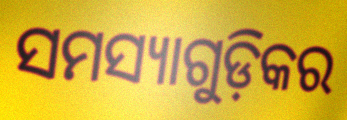
ସମସ୍ୟାଗୁଡ଼ିକର